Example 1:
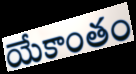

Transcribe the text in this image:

యేకాంతం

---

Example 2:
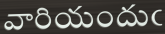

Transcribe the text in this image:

వారియందుఁ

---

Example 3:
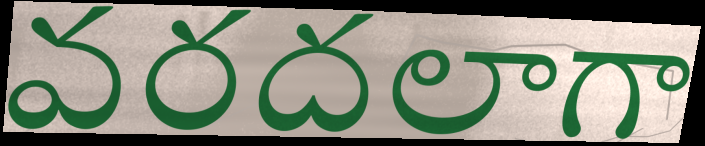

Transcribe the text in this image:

వరదలాగా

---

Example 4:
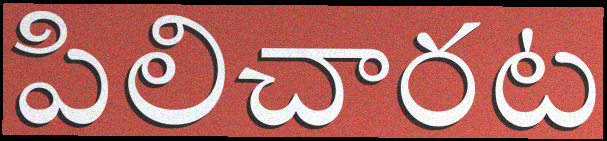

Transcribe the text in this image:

పిలిచారట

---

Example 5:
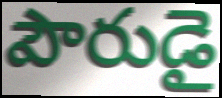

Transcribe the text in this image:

పౌరుడై